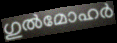
ഗുൽമോഹർ